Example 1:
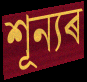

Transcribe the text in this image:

শূন্যৰ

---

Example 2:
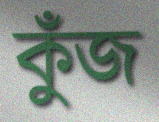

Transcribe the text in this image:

কুঁজ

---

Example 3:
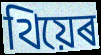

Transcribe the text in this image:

থিয়েৰ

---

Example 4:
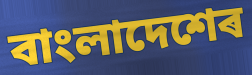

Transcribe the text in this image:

বাংলাদেশেৰ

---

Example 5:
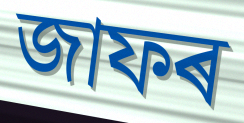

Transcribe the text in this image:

জাফৰ